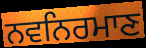
ਨਵਨਿਰਮਾਣ